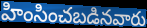
హింసించబడినవారు